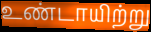
உண்டாயிற்று